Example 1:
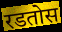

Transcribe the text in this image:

रडतोस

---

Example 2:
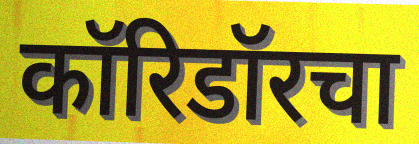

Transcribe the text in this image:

कॉरिडॉरचा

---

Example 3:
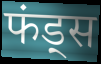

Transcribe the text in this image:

फंड्‌स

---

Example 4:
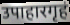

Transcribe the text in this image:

उपाहारगृहं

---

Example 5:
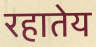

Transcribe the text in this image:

रहातेय